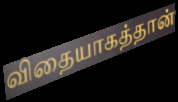
விதையாகத்தான்